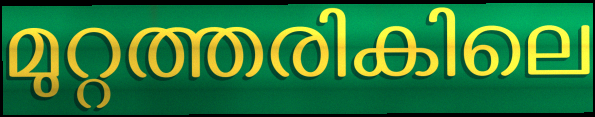
മുറ്റത്തരികിലെ